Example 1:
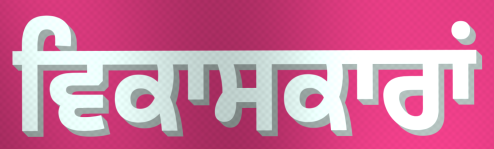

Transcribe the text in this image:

ਵਿਕਾਸਕਾਰਾਂ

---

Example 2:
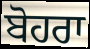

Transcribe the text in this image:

ਬੋਹਰਾ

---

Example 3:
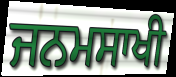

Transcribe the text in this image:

ਜਨਮਸਾਖੀ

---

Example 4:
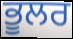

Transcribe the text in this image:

ਭੂਲਰ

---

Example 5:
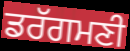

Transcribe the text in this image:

ਡਰੱਗਮਣੀ